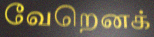
வேறெனக்